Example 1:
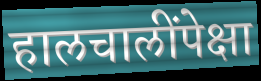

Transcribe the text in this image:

हालचालींपेक्षा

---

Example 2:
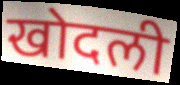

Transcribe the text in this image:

खोदली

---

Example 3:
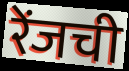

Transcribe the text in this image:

रेंजची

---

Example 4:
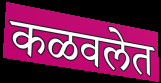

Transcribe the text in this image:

कळवलेत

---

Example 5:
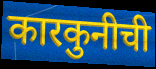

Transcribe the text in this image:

कारकुनीची